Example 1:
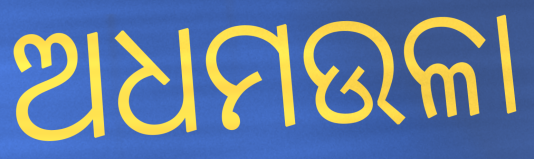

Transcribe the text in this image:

ଅଧମଉଳା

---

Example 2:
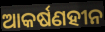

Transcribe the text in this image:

ଆକର୍ଷଣହୀନ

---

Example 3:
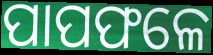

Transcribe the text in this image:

ପାପଫଳେ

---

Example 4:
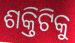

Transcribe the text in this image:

ଶକ୍ତିଟିକୁ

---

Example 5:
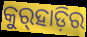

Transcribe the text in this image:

କୁର୍‍ହାଡ଼ିର